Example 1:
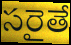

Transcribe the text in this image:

సరైతే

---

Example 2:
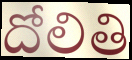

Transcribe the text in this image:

దోలితి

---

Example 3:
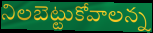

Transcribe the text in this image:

నిలబెట్టుకోవాలన్న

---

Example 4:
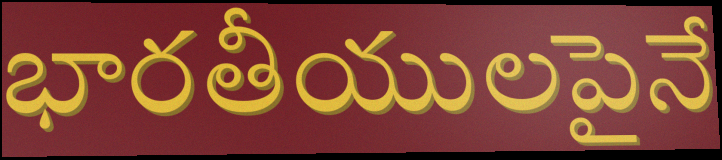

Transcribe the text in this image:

భారతీయులపైనే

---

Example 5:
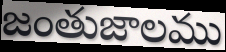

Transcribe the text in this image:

జంతుజాలము